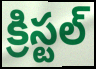
క్రిస్టల్